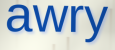
awry